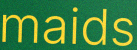
maids